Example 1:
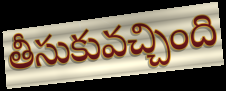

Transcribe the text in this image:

తీసుకువచ్చింది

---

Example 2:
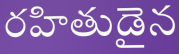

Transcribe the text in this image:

రహితుడైన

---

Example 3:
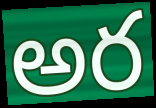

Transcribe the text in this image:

అర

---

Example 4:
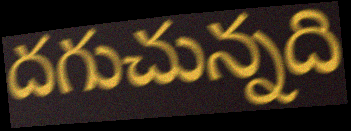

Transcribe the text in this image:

దగుచున్నది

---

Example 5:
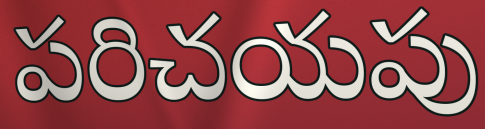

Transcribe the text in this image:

పరిచయపు